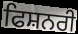
ਫਿਸ਼ਨਰੀ